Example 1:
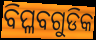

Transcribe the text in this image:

ବିପ୍ଳବଗୁଡିକ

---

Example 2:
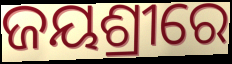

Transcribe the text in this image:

ଜୟଶ୍ରୀରେ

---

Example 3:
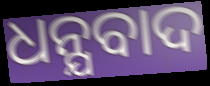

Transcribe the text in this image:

ଧନ୍ଯବାଦ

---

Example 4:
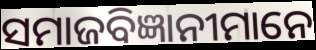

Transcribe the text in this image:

ସମାଜବିଜ୍ଞାନୀମାନେ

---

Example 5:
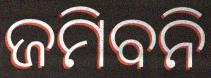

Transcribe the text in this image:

ଜମିବନି